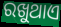
ରଖୁଥାଏ